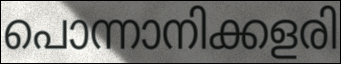
പൊന്നാനിക്കളരി